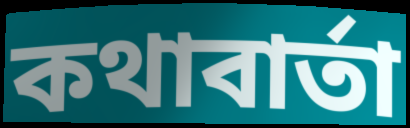
কথাবাৰ্তা